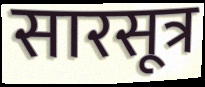
सारसूत्र